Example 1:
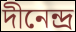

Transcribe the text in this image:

দীনেন্দ্র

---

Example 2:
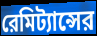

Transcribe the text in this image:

রেমিট্যান্সের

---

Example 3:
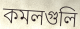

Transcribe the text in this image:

কমলগুলি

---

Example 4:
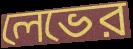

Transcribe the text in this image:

লেভের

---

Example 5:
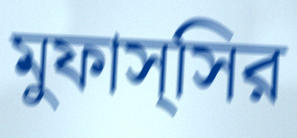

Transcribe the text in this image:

মুফাস্সির